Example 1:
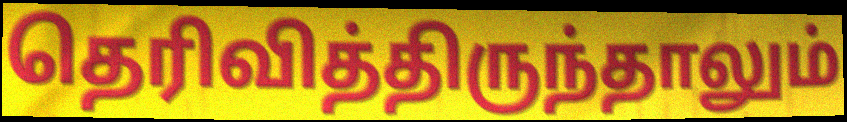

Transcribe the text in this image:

தெரிவித்திருந்தாலும்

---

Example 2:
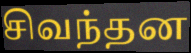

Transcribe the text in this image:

சிவந்தன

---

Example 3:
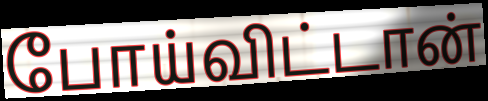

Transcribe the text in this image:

போய்விட்டான்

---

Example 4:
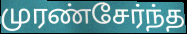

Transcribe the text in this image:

முரண்சேர்ந்த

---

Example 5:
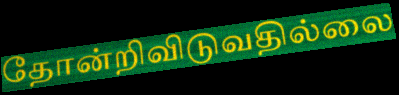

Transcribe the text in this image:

தோன்றிவிடுவதில்லை